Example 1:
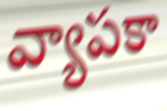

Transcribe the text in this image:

వ్యాపకా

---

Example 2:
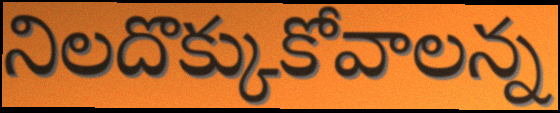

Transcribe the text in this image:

నిలదొక్కుకోవాలన్న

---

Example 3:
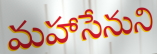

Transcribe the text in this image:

మహాసేనుని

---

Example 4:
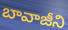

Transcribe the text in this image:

బావాజీని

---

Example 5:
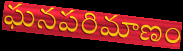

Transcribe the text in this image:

ఘనపరిమాణం